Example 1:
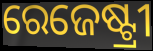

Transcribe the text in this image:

ରେଜେଷ୍ଟ୍ରୀ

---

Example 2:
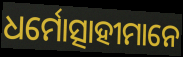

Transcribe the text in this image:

ଧର୍ମୋତ୍ସାହୀମାନେ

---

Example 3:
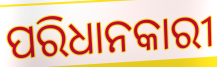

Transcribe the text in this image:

ପରିଧାନକାରୀ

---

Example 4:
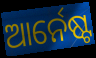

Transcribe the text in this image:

ଆର୍ନେଷ୍ଟ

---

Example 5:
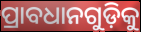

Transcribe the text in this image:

ପ୍ରାବଧାନଗୁଡ଼ିକୁ